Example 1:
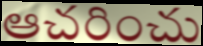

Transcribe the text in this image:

ఆచరించు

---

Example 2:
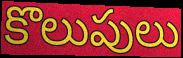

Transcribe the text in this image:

కొలుపులు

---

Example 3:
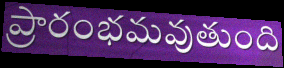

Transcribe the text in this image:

ప్రారంభమవుతుంది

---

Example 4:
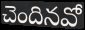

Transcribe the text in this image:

చెందినవో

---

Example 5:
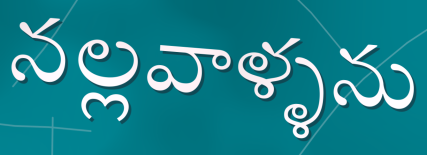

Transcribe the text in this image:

నల్లవాళ్ళను